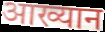
आख्यान